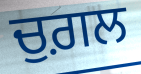
ਚੁਗ਼ਲ